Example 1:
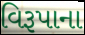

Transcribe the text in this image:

વિરૂપાના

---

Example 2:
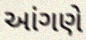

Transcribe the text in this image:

આંગણે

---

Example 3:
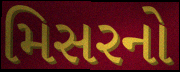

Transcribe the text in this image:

મિસરનો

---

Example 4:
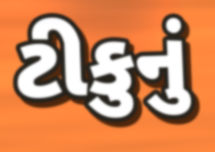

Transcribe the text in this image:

ટીકુનું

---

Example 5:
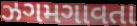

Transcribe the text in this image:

ઝગમગાવતા